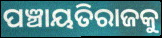
ପଞ୍ଚାୟତିରାଜକୁ